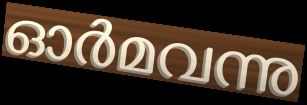
ഓർമവന്നു